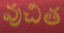
వుచిత